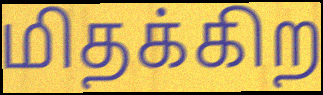
மிதக்கிற